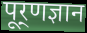
पूर्णज्ञान